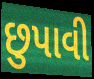
છુપાવી